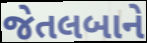
જેતલબાને